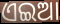
ଏଇଆ